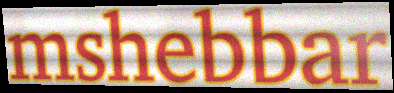
mshebbar